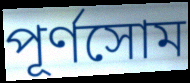
পূর্ণসোম